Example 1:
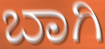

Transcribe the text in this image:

ಬಾಗಿ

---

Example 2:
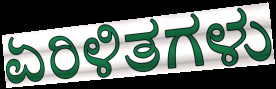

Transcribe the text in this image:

ಏರಿಳಿತಗಳು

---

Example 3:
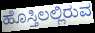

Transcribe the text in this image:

ಹೊಸ್ತಿಲಲ್ಲಿರುವ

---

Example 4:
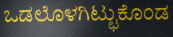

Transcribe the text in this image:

ಒಡಲೊಳಗಿಟ್ಟುಕೊಂಡ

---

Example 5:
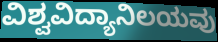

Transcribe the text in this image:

ವಿಶ್ವವಿದ್ಯಾನಿಲಯವು